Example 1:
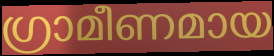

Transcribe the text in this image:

ഗ്രാമീണമായ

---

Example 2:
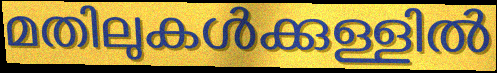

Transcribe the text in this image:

മതിലുകൾക്കുള്ളിൽ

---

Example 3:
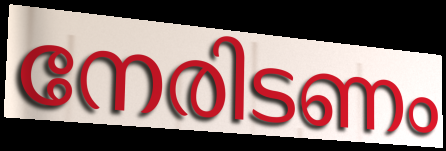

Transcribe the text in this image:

നേരിടണം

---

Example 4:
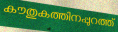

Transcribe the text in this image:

കൗതുകത്തിനപ്പുറത്ത്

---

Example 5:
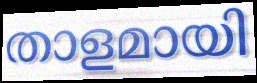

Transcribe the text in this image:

താളമായി